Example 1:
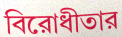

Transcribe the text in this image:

বিরোধীতার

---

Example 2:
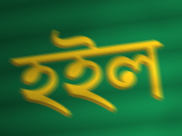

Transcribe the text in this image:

হইল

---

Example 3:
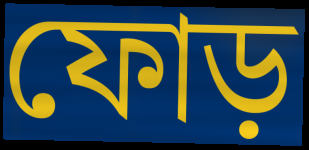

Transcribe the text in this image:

ফোড়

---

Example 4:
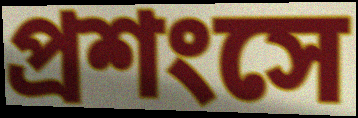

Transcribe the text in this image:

প্রশংসে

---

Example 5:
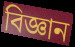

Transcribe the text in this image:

বিজ্ঞান